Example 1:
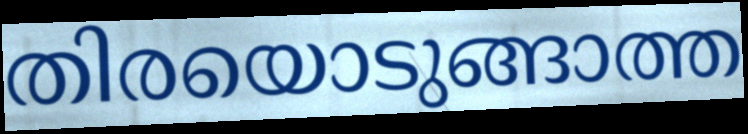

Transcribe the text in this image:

തിരയൊടുങ്ങാത്ത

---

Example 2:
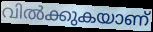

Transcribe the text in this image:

വിൽക്കുകയാണ്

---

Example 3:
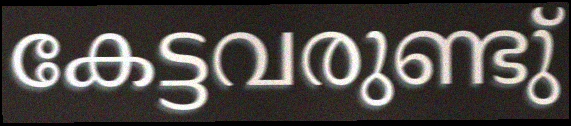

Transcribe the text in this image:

കേട്ടവരുണ്ടു്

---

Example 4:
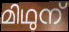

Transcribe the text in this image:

മിഥുന്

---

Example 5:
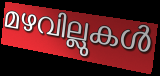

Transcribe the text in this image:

മഴവില്ലുകൾ